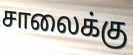
சாலைக்கு